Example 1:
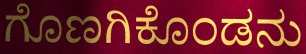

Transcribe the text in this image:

ಗೊಣಗಿಕೊಂಡನು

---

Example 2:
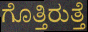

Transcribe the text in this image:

ಗೊತ್ತಿರುತ್ತೆ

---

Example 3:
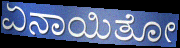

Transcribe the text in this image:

ಏನಾಯಿತೋ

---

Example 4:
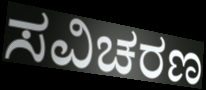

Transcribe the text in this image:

ಸವಿಚರಣ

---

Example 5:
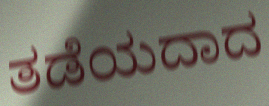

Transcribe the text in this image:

ತಡೆಯದಾದ